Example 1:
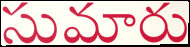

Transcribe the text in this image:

సుమారు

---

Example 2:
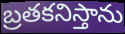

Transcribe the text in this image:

బ్రతకనిస్తాను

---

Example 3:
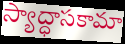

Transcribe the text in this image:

స్యాద్ధాసకామా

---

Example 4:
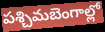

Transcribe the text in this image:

పశ్చిమబెంగాల్లో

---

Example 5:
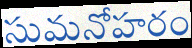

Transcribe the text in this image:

సుమనోహరం